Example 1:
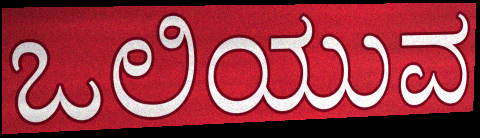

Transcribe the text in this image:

ಒಲಿಯುವ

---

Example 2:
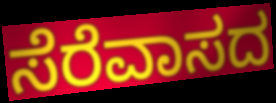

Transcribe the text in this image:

ಸೆರೆವಾಸದ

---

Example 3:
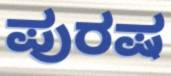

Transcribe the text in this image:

ಪುರಷ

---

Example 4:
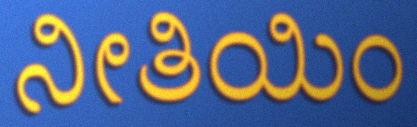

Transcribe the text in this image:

ನೀತಿಯಿಂ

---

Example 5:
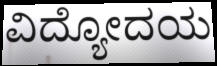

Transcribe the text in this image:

ವಿದ್ಯೋದಯ